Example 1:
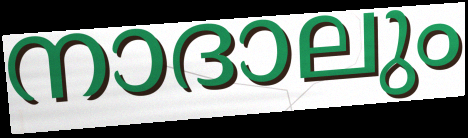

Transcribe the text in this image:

നാദാലും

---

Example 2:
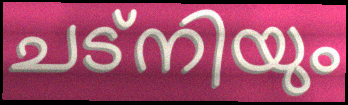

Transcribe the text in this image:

ചട്നിയും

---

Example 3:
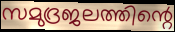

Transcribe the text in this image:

സമുദ്രജലത്തിന്റെ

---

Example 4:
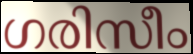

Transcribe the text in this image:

ഗരിസീം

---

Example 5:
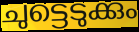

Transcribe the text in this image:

ചുട്ടെടുക്കും